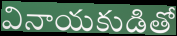
వినాయకుడితో